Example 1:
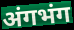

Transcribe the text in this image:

अंगभंग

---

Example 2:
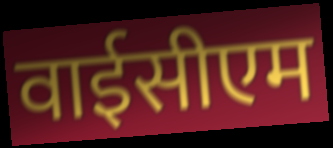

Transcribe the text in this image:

वाईसीएम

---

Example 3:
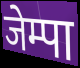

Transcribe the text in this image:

जेम्पा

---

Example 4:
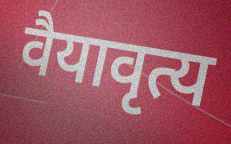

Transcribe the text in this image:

वैयावृत्य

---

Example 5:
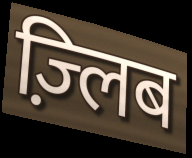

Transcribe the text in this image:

ज़्लिब